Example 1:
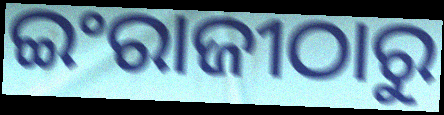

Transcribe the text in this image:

ଇଂରାଜୀଠାରୁ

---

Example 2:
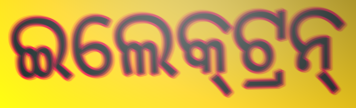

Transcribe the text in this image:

ଇଲେକ୍‍ଟ୍ରନ୍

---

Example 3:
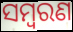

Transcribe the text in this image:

ସମ୍ଵରଣ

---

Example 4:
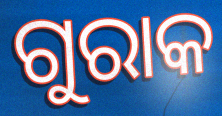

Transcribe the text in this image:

ଗୁରାକ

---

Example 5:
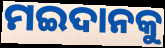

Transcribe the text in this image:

ମଇଦାନକୁ